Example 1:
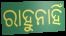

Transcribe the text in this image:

ରାହୁନାହିଁ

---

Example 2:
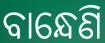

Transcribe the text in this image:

ବାନ୍ଧେଣି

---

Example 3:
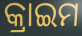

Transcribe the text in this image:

କ୍ରାଇମ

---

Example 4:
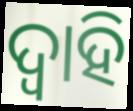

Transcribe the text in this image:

ଦ୍ୱାହି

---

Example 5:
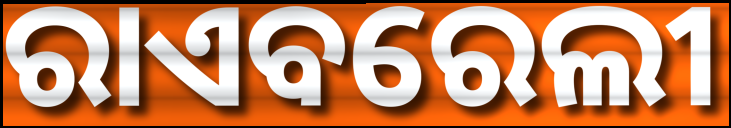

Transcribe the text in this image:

ରାଏବରେଲୀ